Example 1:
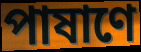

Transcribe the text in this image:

পাষাণে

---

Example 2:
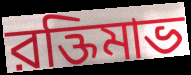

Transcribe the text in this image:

রক্তিমাভ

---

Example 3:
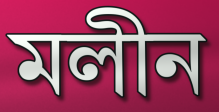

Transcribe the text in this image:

মলীন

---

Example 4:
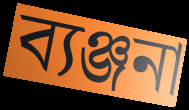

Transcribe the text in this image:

ব্যঞ্জনা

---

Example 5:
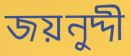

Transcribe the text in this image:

জয়নুদ্দী